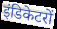
इंडिकेटरों